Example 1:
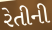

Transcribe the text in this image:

રેતીની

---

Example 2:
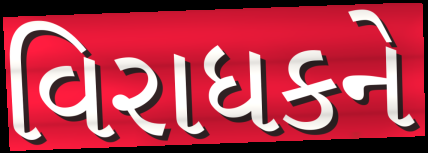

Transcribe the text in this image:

વિરાધકને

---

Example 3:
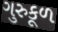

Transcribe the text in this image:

ગુરુકૂળ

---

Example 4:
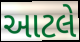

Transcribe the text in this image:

આટલે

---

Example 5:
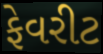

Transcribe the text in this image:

ફેવરીટ